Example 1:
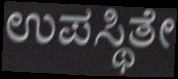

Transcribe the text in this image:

ಉಪಸ್ಥಿತೇ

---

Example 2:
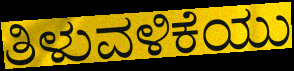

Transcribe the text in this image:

ತಿಳುವಳಿಕೆಯು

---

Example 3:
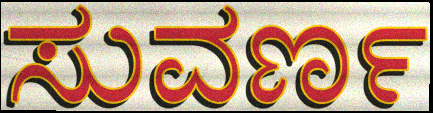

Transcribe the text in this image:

ಸುವರ್ಣ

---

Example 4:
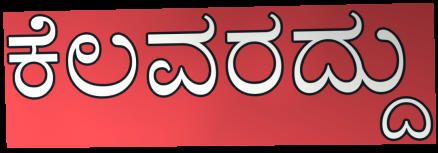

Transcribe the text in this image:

ಕೆಲವರದ್ದು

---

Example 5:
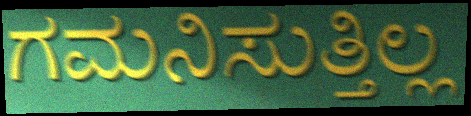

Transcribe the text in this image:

ಗಮನಿಸುತ್ತಿಲ್ಲ